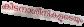
കീടനാശിനികളുടെയും